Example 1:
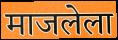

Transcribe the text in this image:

माजलेला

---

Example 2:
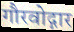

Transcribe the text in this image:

गौरवोद्गार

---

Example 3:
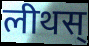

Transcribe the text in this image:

लीथस्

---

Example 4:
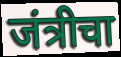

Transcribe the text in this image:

जंत्रीचा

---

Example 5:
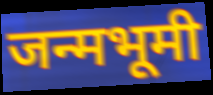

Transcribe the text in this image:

जन्मभूमी